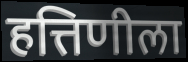
हत्तिणीला